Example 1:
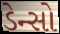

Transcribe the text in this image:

ડેન્સો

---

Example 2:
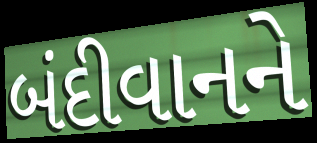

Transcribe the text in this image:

બંદીવાનને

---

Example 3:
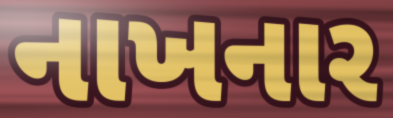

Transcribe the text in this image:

નાખનાર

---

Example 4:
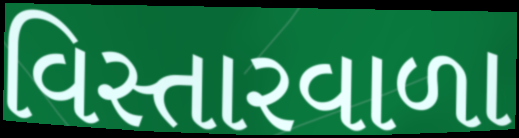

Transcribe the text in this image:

વિસ્તારવાળા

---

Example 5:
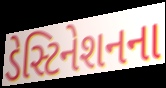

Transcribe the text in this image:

ડેસ્ટિનેશનના